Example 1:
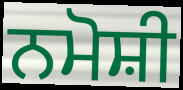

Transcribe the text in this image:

ਨਮੋਸ਼ੀ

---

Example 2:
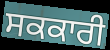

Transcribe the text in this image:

ਸਕਕਾਰੀ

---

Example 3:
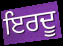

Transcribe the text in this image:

ਇਰਦੂ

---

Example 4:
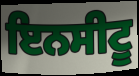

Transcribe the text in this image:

ਇਨਸੀਟੂ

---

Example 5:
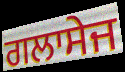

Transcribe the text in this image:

ਗਲਾਸੇਜ